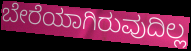
ಬೇರೆಯಾಗಿರುವುದಿಲ್ಲ